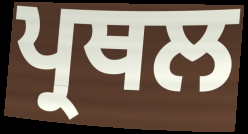
ਪ੍ਰਥਲ